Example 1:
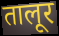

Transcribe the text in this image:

तालूर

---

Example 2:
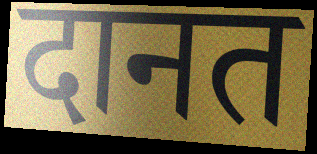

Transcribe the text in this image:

दानत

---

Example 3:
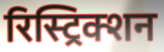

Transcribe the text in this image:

रिस्ट्रिक्शन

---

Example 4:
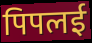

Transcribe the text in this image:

पिपलई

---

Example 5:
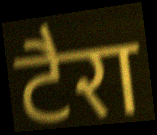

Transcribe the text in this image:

टैरा